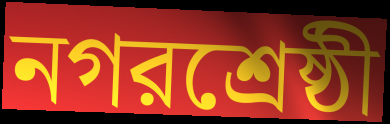
নগরশ্রেষ্ঠী